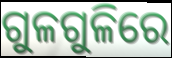
ଗୁଳଗୁଳିରେ